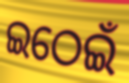
ଇଠେଇଁ